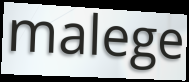
malege